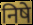
निषे